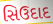
સિઉદાદ